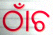
ଠାଁଚ